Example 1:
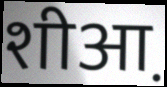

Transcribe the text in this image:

शीआ़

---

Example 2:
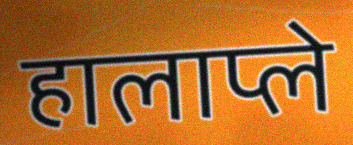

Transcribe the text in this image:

हालाप्ले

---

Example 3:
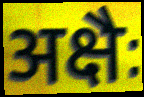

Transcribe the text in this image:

अक्षैः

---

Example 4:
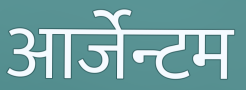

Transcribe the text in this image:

आर्जेन्टम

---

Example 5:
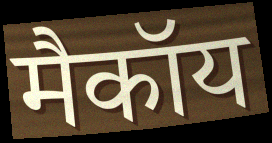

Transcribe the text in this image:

मैकॉय